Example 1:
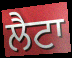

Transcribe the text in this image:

ਲੈਟਾ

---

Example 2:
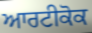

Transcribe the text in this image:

ਆਰਟੀਕੋਕ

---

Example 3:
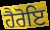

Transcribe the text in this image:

ਹੈਰੋਇ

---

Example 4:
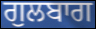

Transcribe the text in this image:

ਗੁਲਬਾਗ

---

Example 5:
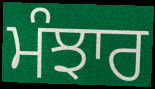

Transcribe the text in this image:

ਮੰਝਾਰ